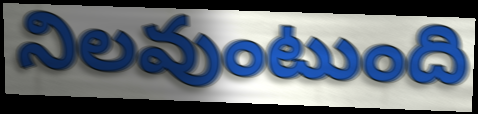
నిలవుంటుంది